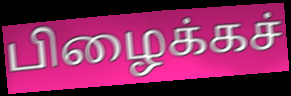
பிழைக்கச்